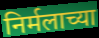
निर्मलाच्या